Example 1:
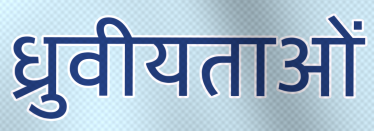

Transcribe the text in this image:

ध्रुवीयताओं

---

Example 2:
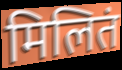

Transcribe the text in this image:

मिलितं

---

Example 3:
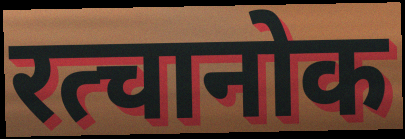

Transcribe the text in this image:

रत्चानोक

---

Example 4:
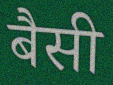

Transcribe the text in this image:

बैसी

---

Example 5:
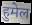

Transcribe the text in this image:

हुमेल